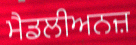
ਮੈਡਲੀਅਨਜ਼